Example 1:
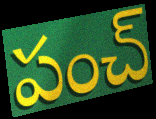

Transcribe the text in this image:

పంచ్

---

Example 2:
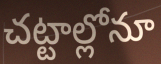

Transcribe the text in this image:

చట్టాల్లోనూ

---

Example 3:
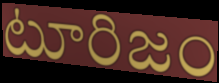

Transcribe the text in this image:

టూరిజం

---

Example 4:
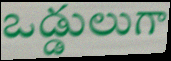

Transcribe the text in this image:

ఒడ్డులుగా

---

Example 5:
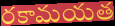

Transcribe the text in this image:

రకామయత